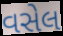
વસેલ